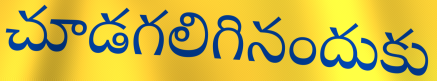
చూడగలిగినందుకు